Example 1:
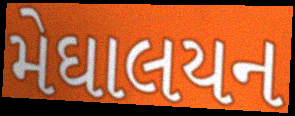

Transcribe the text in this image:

મેઘાલયન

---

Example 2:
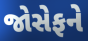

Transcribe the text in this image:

જોસેફને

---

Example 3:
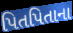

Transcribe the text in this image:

પિતપિતાના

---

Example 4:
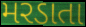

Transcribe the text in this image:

મરડાતા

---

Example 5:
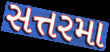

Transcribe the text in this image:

સત્તરમા